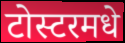
टोस्टरमधे